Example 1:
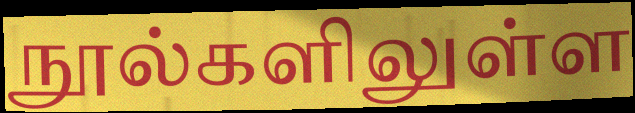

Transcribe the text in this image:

நூல்களிலுள்ள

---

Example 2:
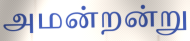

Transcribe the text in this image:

அமன்றன்று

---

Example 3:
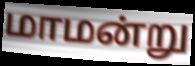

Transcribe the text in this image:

மாமன்று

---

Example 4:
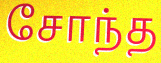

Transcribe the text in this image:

சோந்த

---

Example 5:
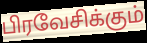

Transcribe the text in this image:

பிரவேசிக்கும்